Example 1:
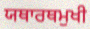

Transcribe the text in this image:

ਯਥਾਰਥਮੁਖੀ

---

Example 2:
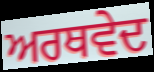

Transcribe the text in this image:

ਅਰਥਵੇਦ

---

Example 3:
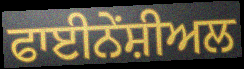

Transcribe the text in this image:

ਫਾਈਨੇਂਸ਼ੀਅਲ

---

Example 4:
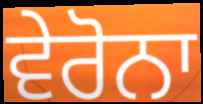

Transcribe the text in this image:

ਵੇਰੋਨਾ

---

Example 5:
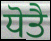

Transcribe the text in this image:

ਧੋਤੈ